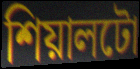
শিয়ালটো